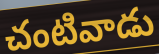
చంటివాడు